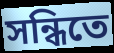
সন্ধিতে